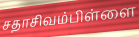
சதாசிவம்பிள்ளை